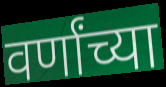
वर्णांच्या